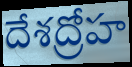
దేశద్రోహ